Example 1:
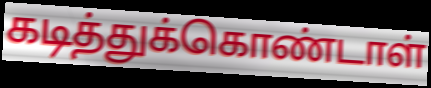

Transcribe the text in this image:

கடித்துக்கொண்டாள்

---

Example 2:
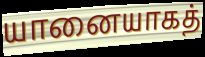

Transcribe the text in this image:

யானையாகத்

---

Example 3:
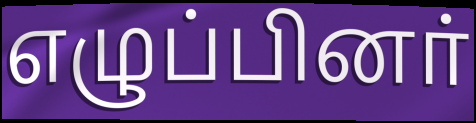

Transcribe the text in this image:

எழுப்பினர்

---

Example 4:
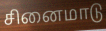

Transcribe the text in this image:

சினைமாடு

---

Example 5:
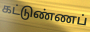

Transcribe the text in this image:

கட்டுண்ணப்